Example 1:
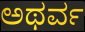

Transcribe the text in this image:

ಅಥರ್ವ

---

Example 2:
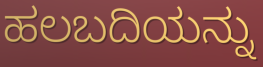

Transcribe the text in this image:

ಹಲಬದಿಯನ್ನು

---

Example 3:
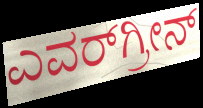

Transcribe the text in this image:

ಎವರ್‌ಗ್ರೀನ್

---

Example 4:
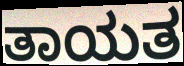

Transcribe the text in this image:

ತಾಯತ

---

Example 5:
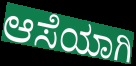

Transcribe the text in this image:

ಆಸೆಯಾಗಿ